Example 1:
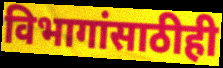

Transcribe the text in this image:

विभागांसाठीही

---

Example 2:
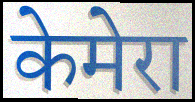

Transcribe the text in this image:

केमेरा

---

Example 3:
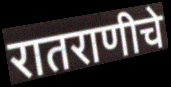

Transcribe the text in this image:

रातराणीचे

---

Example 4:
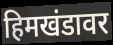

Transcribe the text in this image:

हिमखंडावर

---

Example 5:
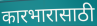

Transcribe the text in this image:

कारभारासाठी